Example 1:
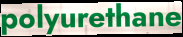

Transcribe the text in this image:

polyurethane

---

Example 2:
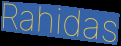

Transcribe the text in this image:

Rahidas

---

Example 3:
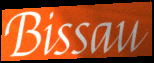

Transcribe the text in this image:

Bissau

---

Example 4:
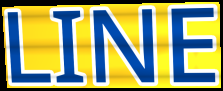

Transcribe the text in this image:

LINE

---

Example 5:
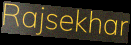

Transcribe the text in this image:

Rajsekhar